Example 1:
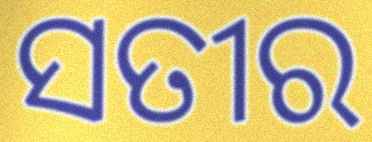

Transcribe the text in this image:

ସତୀର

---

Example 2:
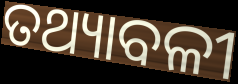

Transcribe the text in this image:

ତଥ୍ୟାବଳୀ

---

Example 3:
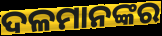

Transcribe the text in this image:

ଦଳମାନଙ୍କର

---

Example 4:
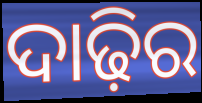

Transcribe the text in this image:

ଦାଢ଼ିର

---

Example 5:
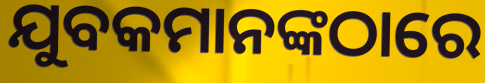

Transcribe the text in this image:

ଯୁବକମାନଙ୍କଠାରେ